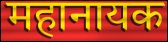
महानायक